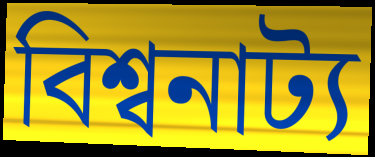
বিশ্বনাট্য